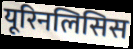
यूरिनलिसिस